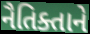
નૈતિક્તાને